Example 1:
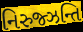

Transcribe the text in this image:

નિરુજ્ઝન્તિ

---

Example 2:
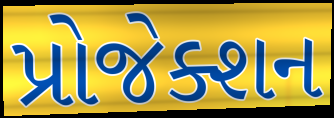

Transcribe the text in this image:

પ્રોજેક્શન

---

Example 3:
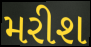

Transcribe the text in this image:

મરીશ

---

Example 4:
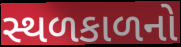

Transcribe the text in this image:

સ્થળકાળનો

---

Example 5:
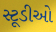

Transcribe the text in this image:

સ્ટૂડીઓ